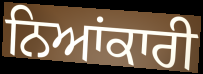
ਨਿਆਂਕਾਰੀ